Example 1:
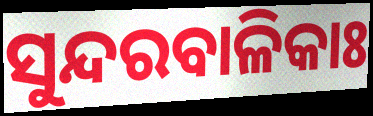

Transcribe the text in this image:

ସୁନ୍ଦରବାଳିକାଃ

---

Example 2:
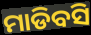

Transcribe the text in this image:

ମାଡିବସି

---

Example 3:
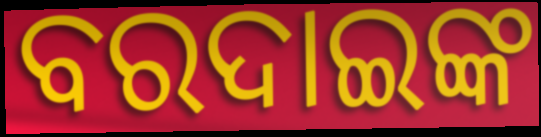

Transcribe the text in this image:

ବରଦାଇଙ୍କ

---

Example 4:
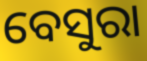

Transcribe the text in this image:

ବେସୁରା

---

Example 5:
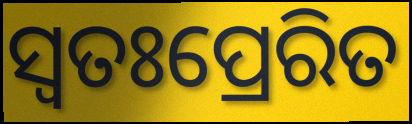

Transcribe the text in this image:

ସ୍ୱତଃପ୍ରେରିତ